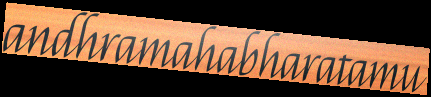
andhramahabharatamu